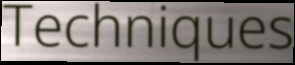
Techniques